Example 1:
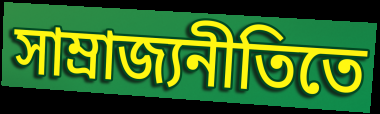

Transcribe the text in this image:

সাম্রাজ্যনীতিতে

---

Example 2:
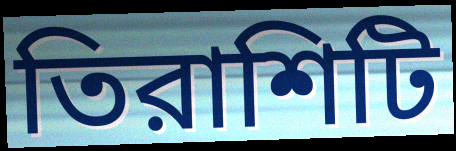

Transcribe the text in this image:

তিরাশিটি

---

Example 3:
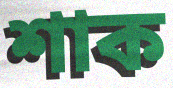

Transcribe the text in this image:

শাক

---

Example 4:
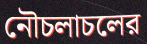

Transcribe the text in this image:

নৌচলাচলের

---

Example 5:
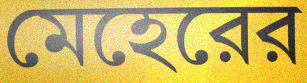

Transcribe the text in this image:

মেহেরের